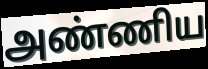
அண்ணிய